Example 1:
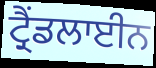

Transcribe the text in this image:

ਟ੍ਰੈਂਡਲਾਈਨ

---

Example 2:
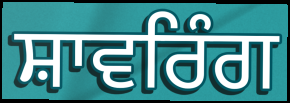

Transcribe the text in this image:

ਸ਼ਾਵਰਿੰਗ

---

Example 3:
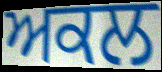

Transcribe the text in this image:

ਅਕਲ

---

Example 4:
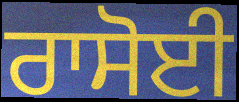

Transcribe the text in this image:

ਰਾਸੋਈ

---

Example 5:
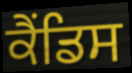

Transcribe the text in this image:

ਕੈਂਡਿਸ